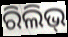
ରିଲିଭ୍